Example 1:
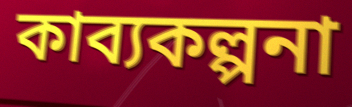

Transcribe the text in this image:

কাব্যকল্পনা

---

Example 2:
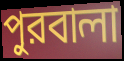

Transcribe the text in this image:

পুরবালা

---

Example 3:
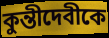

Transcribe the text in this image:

কুন্তীদেবীকে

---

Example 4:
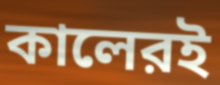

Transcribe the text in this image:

কালেরই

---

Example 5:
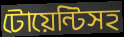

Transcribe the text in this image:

টোয়েন্টিসহ